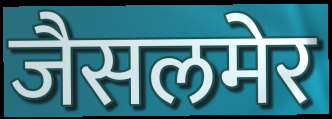
जैसलमेर